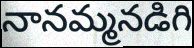
నానమ్మనడిగి